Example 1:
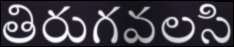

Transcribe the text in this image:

తిరుగవలసి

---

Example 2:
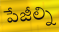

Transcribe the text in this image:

పేజీల్ని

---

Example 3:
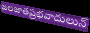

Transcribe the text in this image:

జలజాతప్రభవాదులున్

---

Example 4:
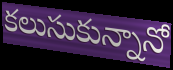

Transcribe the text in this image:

కలుసుకున్నానో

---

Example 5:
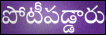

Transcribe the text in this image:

పోటీపడ్డారు